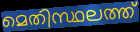
മെതിസ്ഥലത്ത്